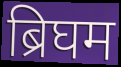
ब्रिघम